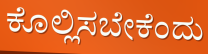
ಕೊಲ್ಲಿಸಬೇಕೆಂದು